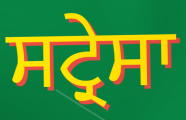
ਸਟ੍ਰੇਸਾ